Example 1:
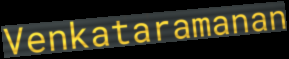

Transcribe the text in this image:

Venkataramanan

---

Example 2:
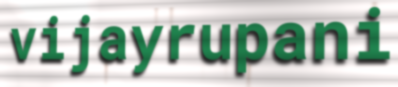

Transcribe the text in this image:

vijayrupani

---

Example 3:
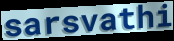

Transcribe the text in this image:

sarsvathi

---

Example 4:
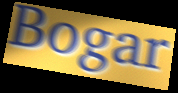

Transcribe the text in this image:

Bogar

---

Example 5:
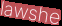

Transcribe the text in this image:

lawshe